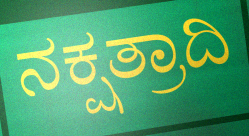
ನಕ್ಷತ್ರಾದಿ